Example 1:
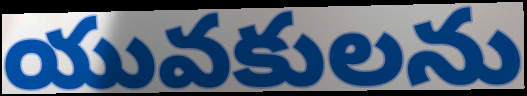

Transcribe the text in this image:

యువకులను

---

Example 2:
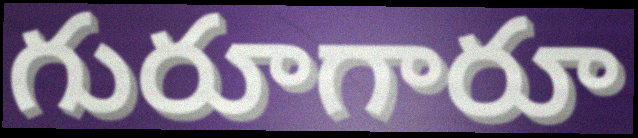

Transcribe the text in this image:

గురూగారూ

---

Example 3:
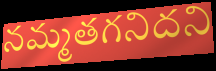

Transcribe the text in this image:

నమ్మతగనిదని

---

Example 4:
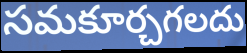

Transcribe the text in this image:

సమకూర్చగలదు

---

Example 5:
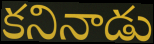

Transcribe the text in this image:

కనినాడు